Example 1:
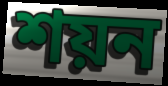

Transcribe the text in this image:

শয়ন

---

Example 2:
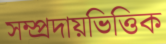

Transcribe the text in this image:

সম্প্ৰদায়ভিত্তিক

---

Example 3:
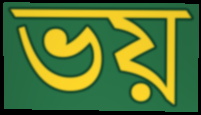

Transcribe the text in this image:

ভয়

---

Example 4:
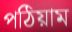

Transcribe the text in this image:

পঠিয়াম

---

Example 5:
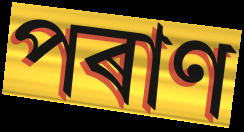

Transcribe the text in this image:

পৰাণ